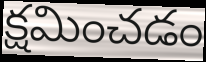
క్షమించడం